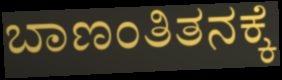
ಬಾಣಂತಿತನಕ್ಕೆ